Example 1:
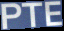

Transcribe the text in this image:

PTE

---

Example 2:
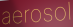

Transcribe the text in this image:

aerosol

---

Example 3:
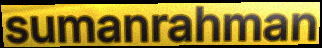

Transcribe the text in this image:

sumanrahman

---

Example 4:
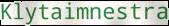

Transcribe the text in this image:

Klytaimnestra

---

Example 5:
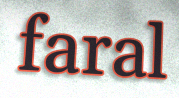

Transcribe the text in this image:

faral